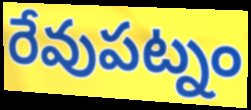
రేవుపట్నం